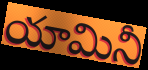
యామినీ